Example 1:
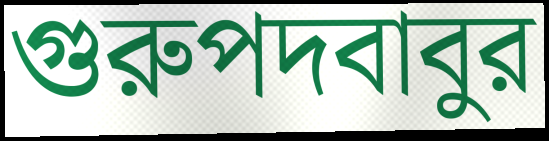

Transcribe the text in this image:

গুরুপদবাবুর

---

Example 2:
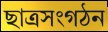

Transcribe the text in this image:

ছাত্রসংগঠন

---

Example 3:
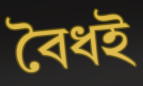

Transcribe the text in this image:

বৈধই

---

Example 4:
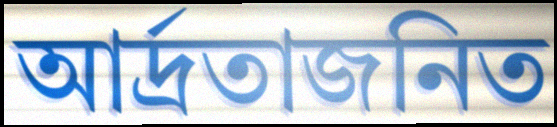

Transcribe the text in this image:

আর্দ্রতাজনিত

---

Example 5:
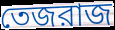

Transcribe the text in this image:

তেজরাজ